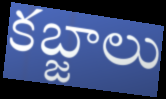
కబ్జాలు